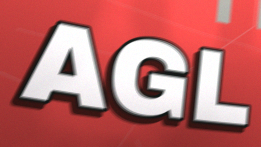
AGL